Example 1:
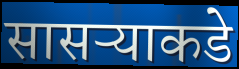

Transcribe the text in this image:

सासऱ्याकडे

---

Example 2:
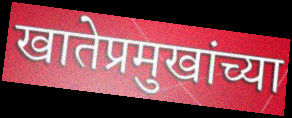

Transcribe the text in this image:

खातेप्रमुखांच्या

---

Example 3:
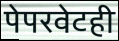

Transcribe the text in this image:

पेपरवेटही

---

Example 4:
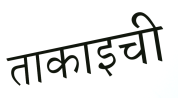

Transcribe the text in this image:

ताकाइची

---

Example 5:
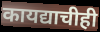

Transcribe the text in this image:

कायद्याचीही